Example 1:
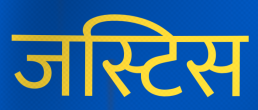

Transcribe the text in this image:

जस्टिस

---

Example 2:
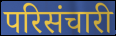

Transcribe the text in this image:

परिसंचारी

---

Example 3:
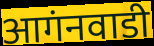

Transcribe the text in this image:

आगंनवाडी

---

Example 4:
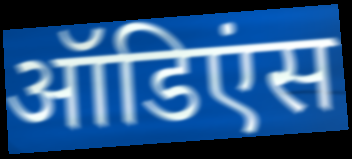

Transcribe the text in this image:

ऑडिएंस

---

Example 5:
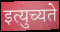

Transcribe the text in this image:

इत्युच्यते